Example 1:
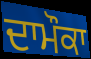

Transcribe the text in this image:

ਦਾਮੌਕਾ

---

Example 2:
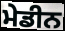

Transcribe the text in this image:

ਮੇਡੀਨ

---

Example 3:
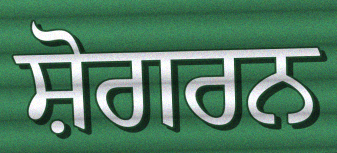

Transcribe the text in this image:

ਸ਼ੋਗਰਨ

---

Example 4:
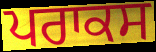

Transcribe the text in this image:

ਪਰਾਕਸ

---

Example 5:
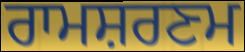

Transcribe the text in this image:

ਰਾਮਸ਼ਰਣਮ